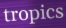
tropics